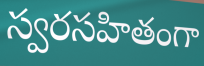
స్వరసహితంగా